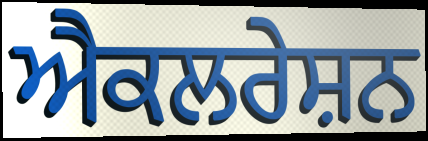
ਐਕਲਰੇਸ਼ਨ